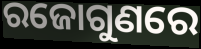
ରଜୋଗୁଣରେ